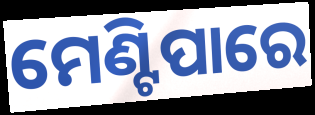
ମେଣ୍ଟିପାରେ